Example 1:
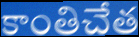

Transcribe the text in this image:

కాంతిచేత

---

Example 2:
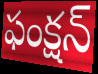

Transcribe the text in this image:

ఫంక్షన్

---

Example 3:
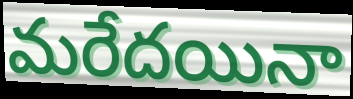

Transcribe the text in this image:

మరేదయినా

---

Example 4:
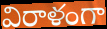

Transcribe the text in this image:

విరాళంగా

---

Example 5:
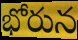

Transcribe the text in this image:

భోరున